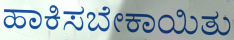
ಹಾಕಿಸಬೇಕಾಯಿತು